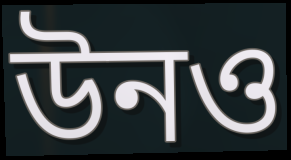
উনও